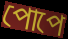
পোপে